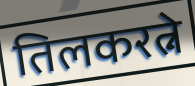
तिलकरत्ने